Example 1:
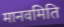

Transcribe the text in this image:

मानवमिति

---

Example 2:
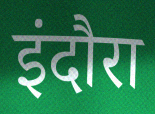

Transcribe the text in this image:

इंदौरा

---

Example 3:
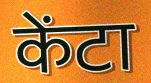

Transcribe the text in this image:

केंटा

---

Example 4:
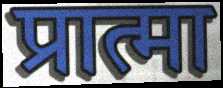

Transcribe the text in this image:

प्रात्मा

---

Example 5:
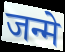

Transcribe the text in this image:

जन्मे